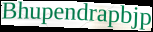
Bhupendrapbjp